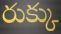
రుక్కు